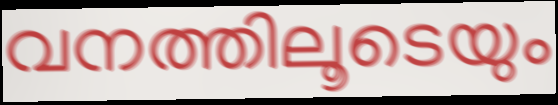
വനത്തിലൂടെയും